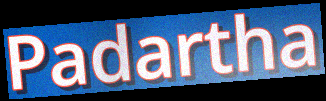
Padartha